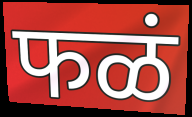
फळं